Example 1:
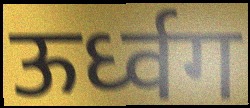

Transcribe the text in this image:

ऊर्ध्वग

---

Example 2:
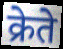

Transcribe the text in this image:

क्रेते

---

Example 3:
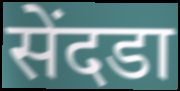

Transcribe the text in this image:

सेंदडा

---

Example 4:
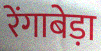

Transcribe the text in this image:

रेंगाबेड़ा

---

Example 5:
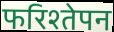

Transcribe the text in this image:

फरिश्तेपन